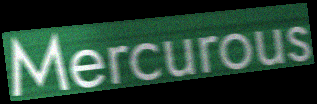
Mercurous